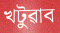
খটুৱাব